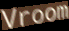
Vroom